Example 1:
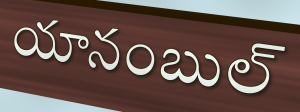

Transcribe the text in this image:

యానంబుల్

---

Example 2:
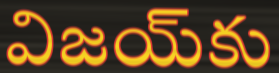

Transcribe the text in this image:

విజయ్‌కు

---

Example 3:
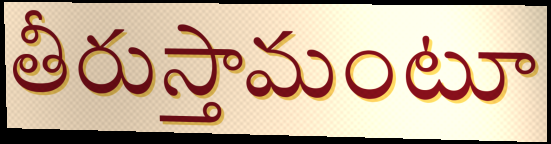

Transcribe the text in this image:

తీరుస్తామంటూ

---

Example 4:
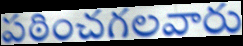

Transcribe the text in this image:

పఠించగలవారు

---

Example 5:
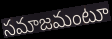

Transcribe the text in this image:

సమాజమంటూ